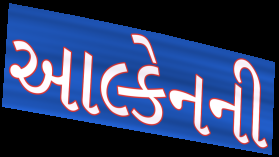
આલ્કેનની